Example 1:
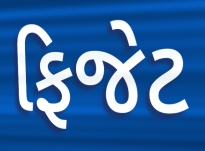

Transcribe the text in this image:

ફિજેટ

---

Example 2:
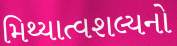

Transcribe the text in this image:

મિથ્યાત્વશલ્યનો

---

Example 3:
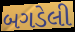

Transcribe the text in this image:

બગડેલી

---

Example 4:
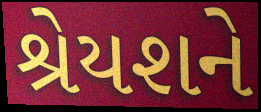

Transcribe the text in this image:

શ્રેયશને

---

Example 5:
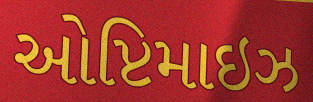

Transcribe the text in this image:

ઓપ્ટિમાઇઝ